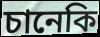
চানেকি